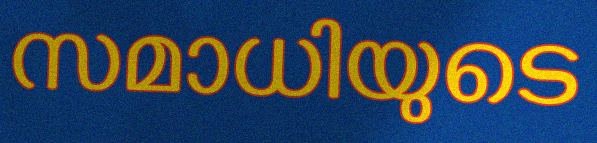
സമാധിയുടെ